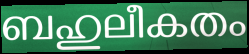
ബഹുലീകതം